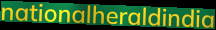
nationalheraldindia